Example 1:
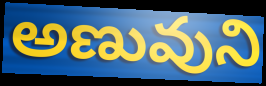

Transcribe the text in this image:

అణువుని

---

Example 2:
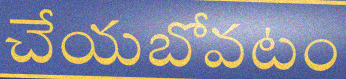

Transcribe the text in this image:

చేయబోవటం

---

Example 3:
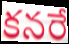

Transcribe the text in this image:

కనరే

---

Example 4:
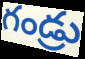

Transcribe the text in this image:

గండ్రు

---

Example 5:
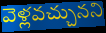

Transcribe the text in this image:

వెళ్లవచ్చునని